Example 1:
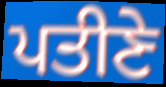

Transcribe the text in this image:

ਪਤੀਣੇ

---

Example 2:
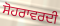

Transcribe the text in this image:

ਸੋਹਰਾਵਰਦੀ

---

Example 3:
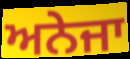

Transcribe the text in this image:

ਅਨੇਜਾ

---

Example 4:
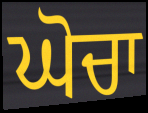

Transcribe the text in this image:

ਘੋਚਾ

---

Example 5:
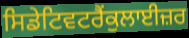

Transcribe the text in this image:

ਸਿਡੇਟਿਵਟਰੈਂਕੁਲਾਈਜ਼ਰ